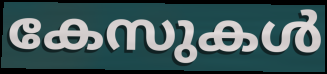
കേസുകൾ